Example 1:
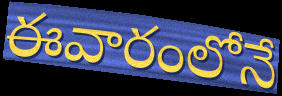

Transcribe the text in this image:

ఈవారంలోనే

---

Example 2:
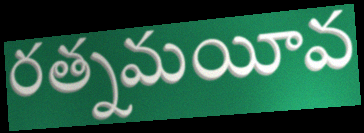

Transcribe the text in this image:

రత్నమయీవ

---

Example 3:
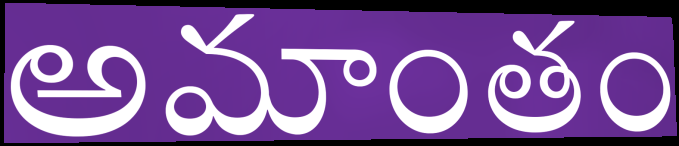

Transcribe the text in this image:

అమాంతం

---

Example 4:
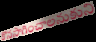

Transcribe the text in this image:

కొనసాగించాలనుకుని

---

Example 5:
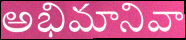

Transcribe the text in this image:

అభిమానివా